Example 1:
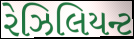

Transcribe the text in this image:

રેઝિલિયન્ટ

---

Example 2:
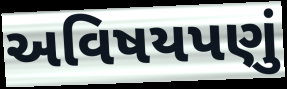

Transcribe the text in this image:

અવિષયપણું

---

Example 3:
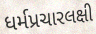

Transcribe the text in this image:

ધર્મપ્રચારલક્ષી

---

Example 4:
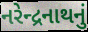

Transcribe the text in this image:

નરેન્દ્રનાથનું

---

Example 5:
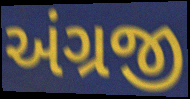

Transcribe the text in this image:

અંગ્રજી